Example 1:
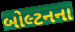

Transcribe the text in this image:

બોલ્ટનના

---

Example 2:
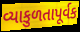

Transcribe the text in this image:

વ્યાકુળતાપૂર્વક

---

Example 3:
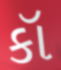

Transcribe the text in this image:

કૉ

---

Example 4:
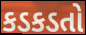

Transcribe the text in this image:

કડકડતો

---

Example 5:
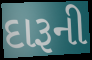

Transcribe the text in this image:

દારૂની